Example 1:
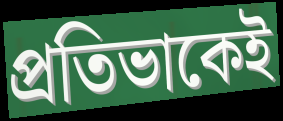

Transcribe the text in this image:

প্রতিভাকেই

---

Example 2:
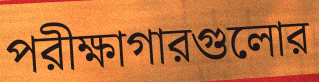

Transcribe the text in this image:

পরীক্ষাগারগুলোর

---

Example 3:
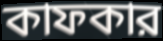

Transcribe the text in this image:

কাফকার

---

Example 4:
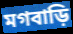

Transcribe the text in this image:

মগবাড়ি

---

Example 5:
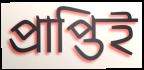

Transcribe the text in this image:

প্রাপ্তিই